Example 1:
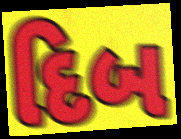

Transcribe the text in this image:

દિબ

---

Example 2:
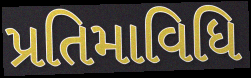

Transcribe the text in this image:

પ્રતિમાવિધિ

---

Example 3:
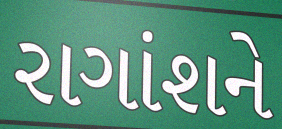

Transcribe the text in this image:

રાગાંશને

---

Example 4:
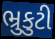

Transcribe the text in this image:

ભ્રુકુટી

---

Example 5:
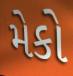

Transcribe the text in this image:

મેકો